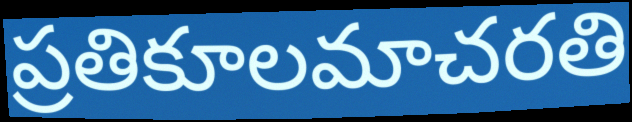
ప్రతికూలమాచరతి